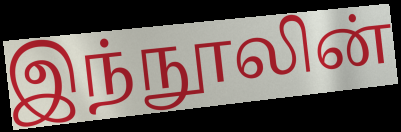
இந்நூலின்